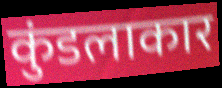
कुंडलाकार